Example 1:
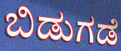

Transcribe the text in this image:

ಬಿಡುಗಡೆ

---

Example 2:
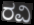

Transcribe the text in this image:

ರವಿ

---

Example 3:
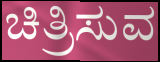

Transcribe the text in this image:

ಚಿತ್ರಿಸುವ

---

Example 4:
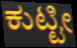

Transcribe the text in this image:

ಕುಟ್ಟೀ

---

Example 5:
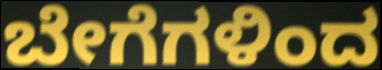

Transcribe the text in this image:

ಬೇಗೆಗಳಿಂದ